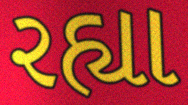
રહ્યા